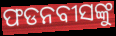
ଫଡନବୀସଙ୍କୁ